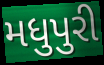
મધુપુરી